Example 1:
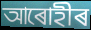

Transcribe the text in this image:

আৰোহীৰ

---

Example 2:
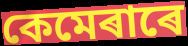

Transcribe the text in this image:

কেমেৰাৰে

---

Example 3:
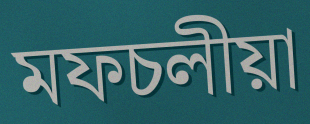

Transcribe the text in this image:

মফচলীয়া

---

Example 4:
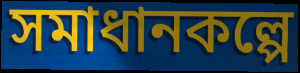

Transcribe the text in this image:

সমাধানকল্পে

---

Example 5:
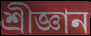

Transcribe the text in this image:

শ্ৰীজ্ঞান